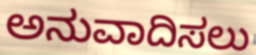
ಅನುವಾದಿಸಲು